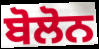
ਬੋਲੋਨ